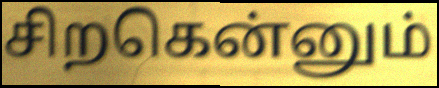
சிறகென்னும்